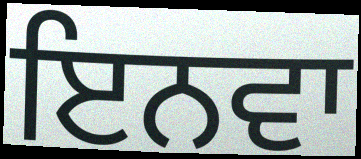
ਇਨਵਾ